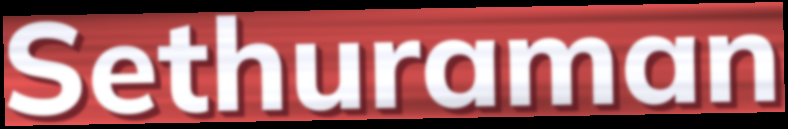
Sethuraman